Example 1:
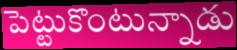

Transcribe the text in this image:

పెట్టుకొంటున్నాడు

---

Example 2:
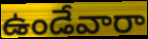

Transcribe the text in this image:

ఉండేవారా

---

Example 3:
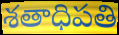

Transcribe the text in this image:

శతాధిపతి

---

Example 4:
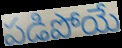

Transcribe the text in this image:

పడిపోయే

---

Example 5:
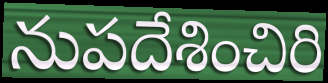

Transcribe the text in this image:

నుపదేశించిరి